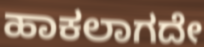
ಹಾಕಲಾಗದೇ